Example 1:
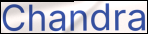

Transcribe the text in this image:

Chandra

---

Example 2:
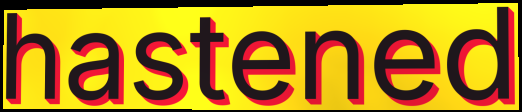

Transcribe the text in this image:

hastened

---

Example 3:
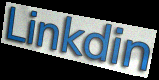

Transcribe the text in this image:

Linkdin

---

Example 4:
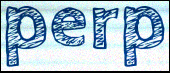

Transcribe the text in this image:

perp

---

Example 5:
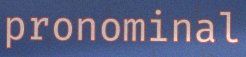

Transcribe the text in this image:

pronominal